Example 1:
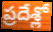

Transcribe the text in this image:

ప్రదేశ్లో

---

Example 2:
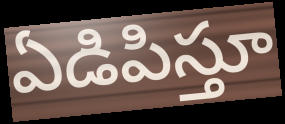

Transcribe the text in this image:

ఏడిపిస్తూ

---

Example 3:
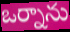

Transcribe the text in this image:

ఒర్నాను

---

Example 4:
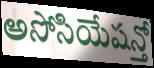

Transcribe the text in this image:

అసోసియేషన్తో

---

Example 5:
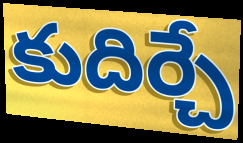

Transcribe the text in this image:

కుదిర్చే